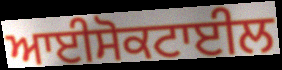
ਆਈਸੋਕਟਾਈਲ